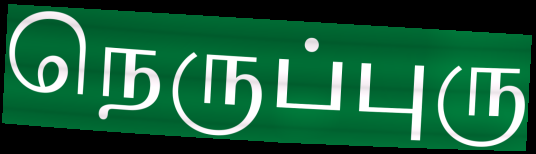
நெருப்புரு